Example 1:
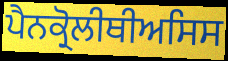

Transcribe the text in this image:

ਪੈਨਕ੍ਰੋਲੀਥੀਅਸਿਸ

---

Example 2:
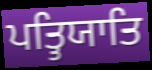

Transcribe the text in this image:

ਪਤ੍ਤਿਯਾਤਿ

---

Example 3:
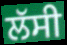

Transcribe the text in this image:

ਲੱਸੀ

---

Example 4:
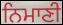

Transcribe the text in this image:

ਨਿਮਾਣੀ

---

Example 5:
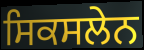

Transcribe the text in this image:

ਸਿਕਸਲੇਨ